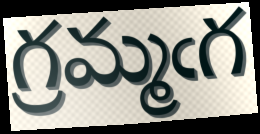
గ్రమ్మఁగ